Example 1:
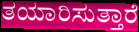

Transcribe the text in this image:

ತಯಾರಿಸುತ್ತಾರೆ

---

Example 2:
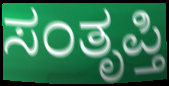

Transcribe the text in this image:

ಸಂತೃಪ್ತಿ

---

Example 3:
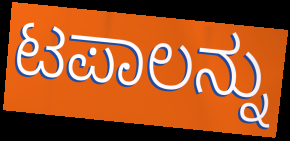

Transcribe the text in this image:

ಟಪಾಲನ್ನು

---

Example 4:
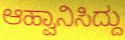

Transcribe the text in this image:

ಆಹ್ವಾನಿಸಿದ್ದು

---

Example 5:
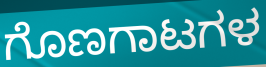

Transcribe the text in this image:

ಗೊಣಗಾಟಗಳ